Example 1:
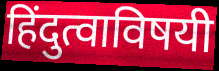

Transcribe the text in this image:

हिंदुत्वाविषयी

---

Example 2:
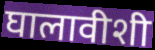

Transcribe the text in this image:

घालावीशी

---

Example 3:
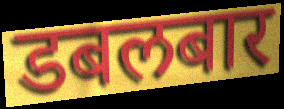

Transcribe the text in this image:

डबलबार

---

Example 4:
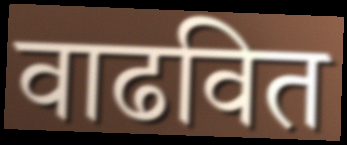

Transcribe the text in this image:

वाढवित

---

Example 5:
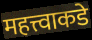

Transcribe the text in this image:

महत्त्वाकडे